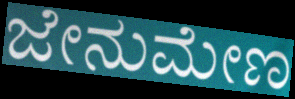
ಜೇನುಮೇಣ